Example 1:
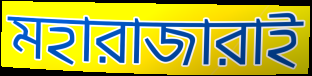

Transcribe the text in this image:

মহারাজারাই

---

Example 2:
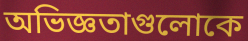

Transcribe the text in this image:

অভিজ্ঞতাগুলোকে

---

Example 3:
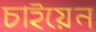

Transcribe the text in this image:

চাইয়েন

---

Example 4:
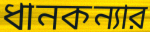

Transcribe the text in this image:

ধানকন্যার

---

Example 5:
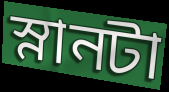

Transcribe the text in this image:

স্নানটা